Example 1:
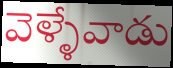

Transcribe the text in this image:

వెళ్ళేవాడు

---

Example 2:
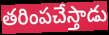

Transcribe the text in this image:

తరింపచేస్తాడు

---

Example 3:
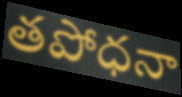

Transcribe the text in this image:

తపోధనా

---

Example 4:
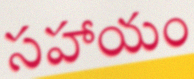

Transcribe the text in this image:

సహాయం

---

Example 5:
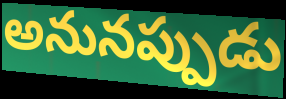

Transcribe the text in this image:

అనునప్పుడు